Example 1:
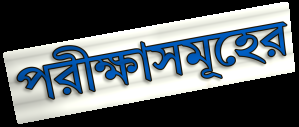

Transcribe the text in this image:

পরীক্ষাসমূহের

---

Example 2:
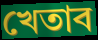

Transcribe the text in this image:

খেতাব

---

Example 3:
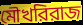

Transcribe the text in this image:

মৌখরিরাজ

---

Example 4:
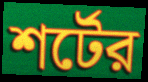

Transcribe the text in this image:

শর্টের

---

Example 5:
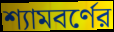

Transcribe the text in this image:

শ্যামবর্ণের